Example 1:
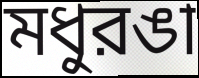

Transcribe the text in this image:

মধুরঙা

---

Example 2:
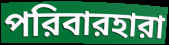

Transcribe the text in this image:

পরিবারহারা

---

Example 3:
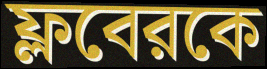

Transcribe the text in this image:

ফ্লবেরকে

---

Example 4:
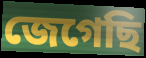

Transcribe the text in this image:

জেগেছি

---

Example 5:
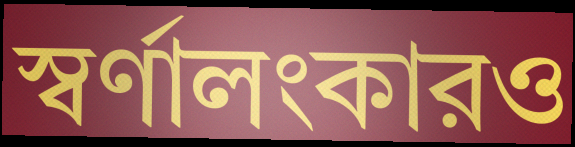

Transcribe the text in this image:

স্বর্ণালংকারও